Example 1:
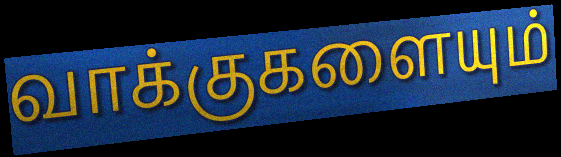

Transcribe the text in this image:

வாக்குகளையும்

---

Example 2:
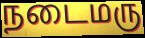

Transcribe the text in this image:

நடைமரு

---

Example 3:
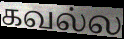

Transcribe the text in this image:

கவல்ல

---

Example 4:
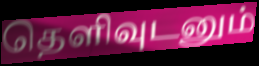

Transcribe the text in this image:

தெளிவுடனும்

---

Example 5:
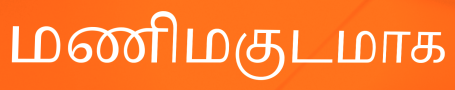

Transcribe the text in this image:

மணிமகுடமாக